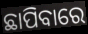
ଛାପିବାରେ